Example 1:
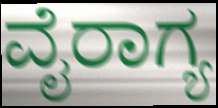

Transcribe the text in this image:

ವೈರಾಗ್ಯ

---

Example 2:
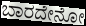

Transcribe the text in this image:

ಬಾರದೇನೋ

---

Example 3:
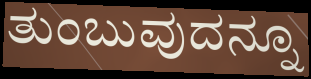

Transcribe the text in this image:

ತುಂಬುವುದನ್ನೂ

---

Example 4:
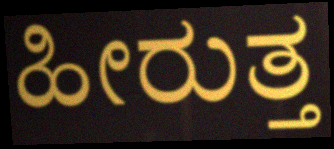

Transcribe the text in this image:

ಹೀರುತ್ತ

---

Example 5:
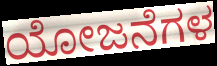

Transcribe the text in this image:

ಯೋಜನೆಗಳ